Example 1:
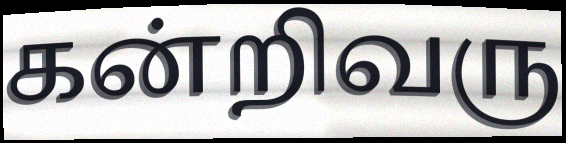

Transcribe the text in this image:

கன்றிவரு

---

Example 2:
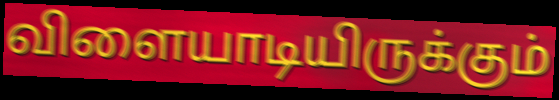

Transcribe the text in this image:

விளையாடியிருக்கும்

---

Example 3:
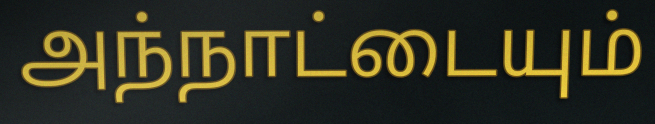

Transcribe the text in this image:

அந்நாட்டையும்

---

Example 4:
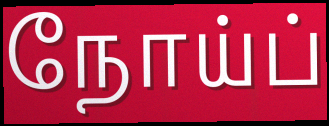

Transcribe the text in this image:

நோய்ப்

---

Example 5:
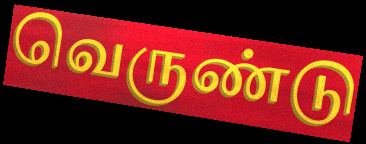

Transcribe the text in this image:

வெருண்டு